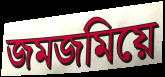
জমজমিয়ে